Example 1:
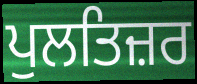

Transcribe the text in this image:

ਪੁਲਤਿਜ਼ਰ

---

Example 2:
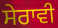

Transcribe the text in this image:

ਸੇਰਾਵੀ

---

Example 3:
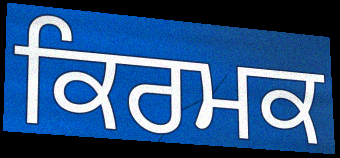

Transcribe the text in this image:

ਕਿਰਮਕ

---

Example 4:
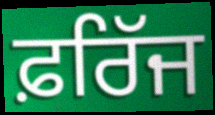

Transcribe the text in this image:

ਫ਼ਰਿੱਜ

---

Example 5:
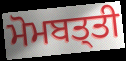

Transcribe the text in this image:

ਮੋਮਬਤ੍ਤੀ